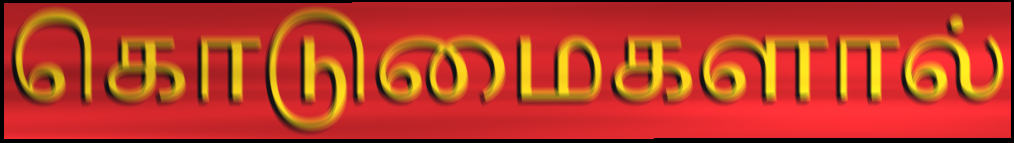
கொடுமைகளால்